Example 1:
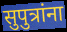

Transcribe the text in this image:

सुपुत्रांना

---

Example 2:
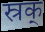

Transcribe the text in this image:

स्रक्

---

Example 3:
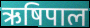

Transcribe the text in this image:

ऋषिपाल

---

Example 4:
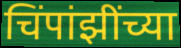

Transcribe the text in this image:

चिंपांझींच्या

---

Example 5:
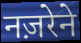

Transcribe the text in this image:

नज़रेने